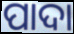
ପାଦା